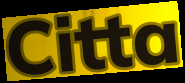
Citta